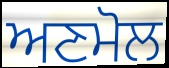
ਅਣਮੋਲ